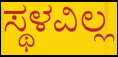
ಸ್ಥಳವಿಲ್ಲ